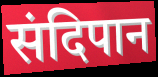
संदिपान